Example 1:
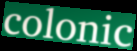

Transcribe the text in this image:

colonic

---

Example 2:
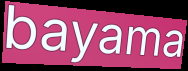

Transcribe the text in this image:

bayama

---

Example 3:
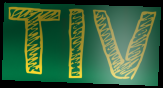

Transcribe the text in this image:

TIV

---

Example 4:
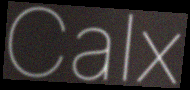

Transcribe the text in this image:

Calx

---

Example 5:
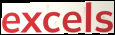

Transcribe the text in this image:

excels